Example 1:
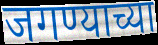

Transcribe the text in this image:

जगण्याच्या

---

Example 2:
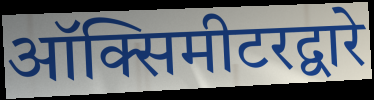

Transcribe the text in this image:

ऑक्सिमीटरद्वारे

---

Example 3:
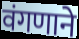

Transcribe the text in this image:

वंगणाने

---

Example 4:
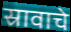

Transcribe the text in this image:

स्रावाचे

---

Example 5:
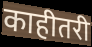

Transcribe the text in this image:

काहीतरी